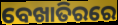
ବେଖାତିରରେ